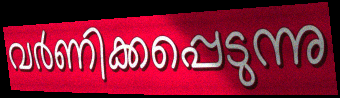
വർണിക്കപ്പെടുന്നു